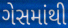
ગેસમાંથી